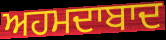
ਅਹਮਦਾਬਾਦ